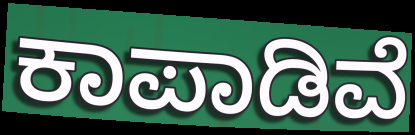
ಕಾಪಾಡಿವೆ